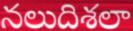
నలుదిశలా